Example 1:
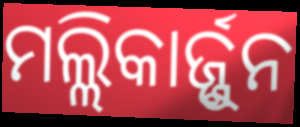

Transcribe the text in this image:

ମଲ୍ଲିକାର୍ଜ୍ଜୁନ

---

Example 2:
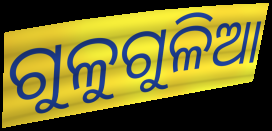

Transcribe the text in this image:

ଗୁଳୁଗୁଳିଆ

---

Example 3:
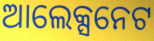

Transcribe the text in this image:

ଆଲେକ୍ସନେଟ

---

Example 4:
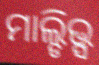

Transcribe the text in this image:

ମାଲ୍ଡିଭ୍ସ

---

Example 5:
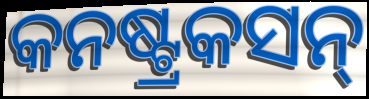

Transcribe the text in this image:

କନଷ୍ଟ୍ରକସନ୍